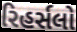
રિહર્સલો